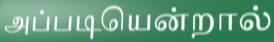
அப்படியென்றால்